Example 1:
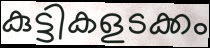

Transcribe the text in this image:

കുട്ടികളടക്കം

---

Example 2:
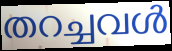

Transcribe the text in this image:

തറച്ചവൾ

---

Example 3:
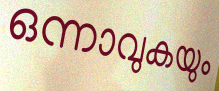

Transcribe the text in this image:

ഒന്നാവുകയും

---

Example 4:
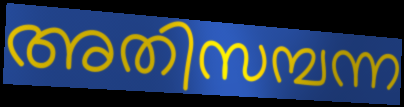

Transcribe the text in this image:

അതിസമ്പന്ന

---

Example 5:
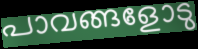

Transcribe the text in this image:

പാവങ്ങളോടു